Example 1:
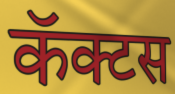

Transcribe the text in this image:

कॅक्टस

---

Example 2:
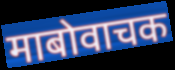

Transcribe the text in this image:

माबोवाचक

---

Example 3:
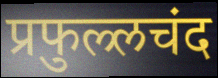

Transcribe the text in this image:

प्रफुल्लचंद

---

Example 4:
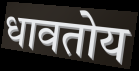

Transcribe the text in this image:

धावतोय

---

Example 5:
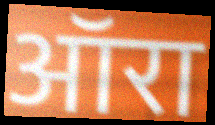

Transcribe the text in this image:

ऑरा